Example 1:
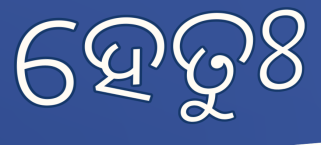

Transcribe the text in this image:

ହେତୁଃ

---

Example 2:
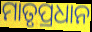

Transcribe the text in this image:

ମାତୃପ୍ରଧାନ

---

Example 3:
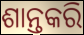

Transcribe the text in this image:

ଶାନ୍ତକରି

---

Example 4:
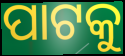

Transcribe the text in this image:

ପାଟକୁ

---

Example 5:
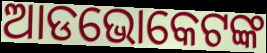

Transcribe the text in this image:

ଆଡଭୋକେଟଙ୍କ